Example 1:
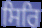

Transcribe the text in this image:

ਸਿਰਿ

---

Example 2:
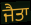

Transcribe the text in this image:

ਜੈਤਾ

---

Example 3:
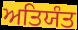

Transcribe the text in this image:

ਅਤਿਯੰਤ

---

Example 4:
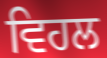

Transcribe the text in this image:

ਵਿਹਲ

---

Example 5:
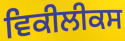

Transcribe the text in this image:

ਵਿਕੀਲੀਕਸ